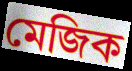
মেজিক